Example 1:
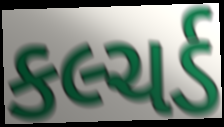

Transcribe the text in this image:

કલ્ચર્ડ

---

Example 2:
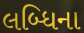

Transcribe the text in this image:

લબ્ધિના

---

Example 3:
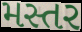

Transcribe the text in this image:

મસ્તર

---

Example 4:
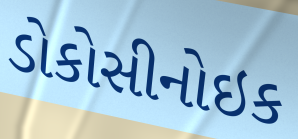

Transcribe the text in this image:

ડોકોસીનોઇક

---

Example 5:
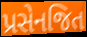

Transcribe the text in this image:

પ્રસેનજિત